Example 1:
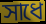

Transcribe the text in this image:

সাধে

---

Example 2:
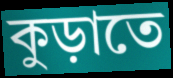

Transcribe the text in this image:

কুড়াতে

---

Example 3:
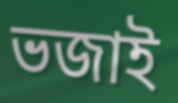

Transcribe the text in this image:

ভজাই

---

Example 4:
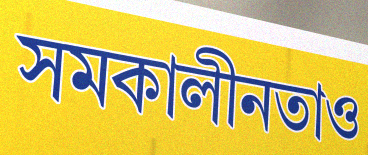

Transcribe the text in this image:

সমকালীনতাও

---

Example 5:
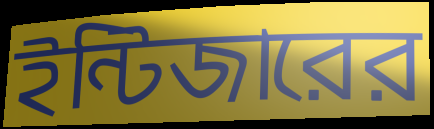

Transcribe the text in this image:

ইন্টিজারের